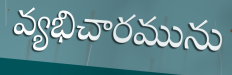
వ్యభిచారమును